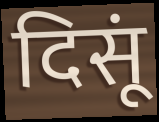
दिसूं